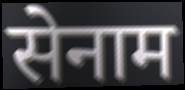
सेनाम